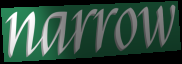
narrow